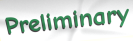
Preliminary